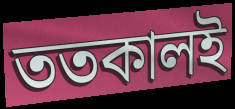
ততকালই